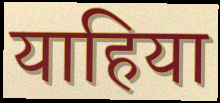
याहिया